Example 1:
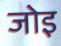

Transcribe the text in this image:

जोइ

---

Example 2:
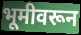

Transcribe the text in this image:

भूमीवरून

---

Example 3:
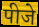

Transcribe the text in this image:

पीजे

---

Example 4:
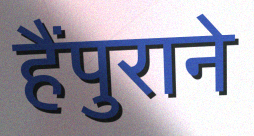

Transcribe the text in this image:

हैंपुराने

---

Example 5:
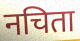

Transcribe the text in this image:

नचिता